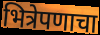
भित्रेपणाचा